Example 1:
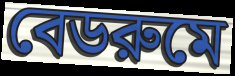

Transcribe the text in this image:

বেডরুমে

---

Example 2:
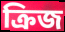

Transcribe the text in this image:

ক্রিজ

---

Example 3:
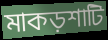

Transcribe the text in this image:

মাকড়শাটি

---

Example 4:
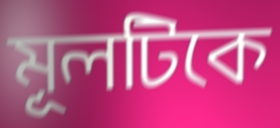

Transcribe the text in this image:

মূলটিকে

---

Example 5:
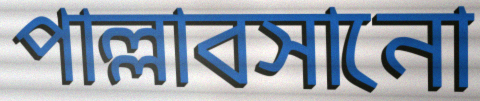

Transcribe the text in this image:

পাল্লাবসানো